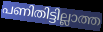
പണിതിട്ടില്ലാത്ത